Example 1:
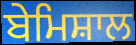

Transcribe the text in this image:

ਬੇਮਿਸ਼ਾਲ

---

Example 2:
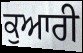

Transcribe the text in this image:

ਕੁਆਰੀ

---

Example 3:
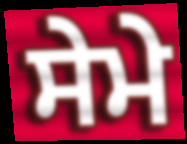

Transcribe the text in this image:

ਸੇਮੇ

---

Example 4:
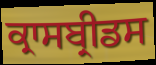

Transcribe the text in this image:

ਕ੍ਰਾਸਬ੍ਰੀਡਸ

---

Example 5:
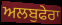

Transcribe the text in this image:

ਅਲਬੁਫੇਰਾ